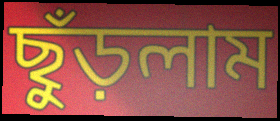
ছুঁড়লাম